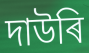
দাউৰি